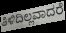
ತಿಳಿದಿಲ್ಲವಾದರೆ